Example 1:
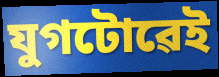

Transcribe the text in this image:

যুগটোৱেই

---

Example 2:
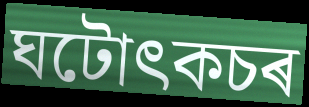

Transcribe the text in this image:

ঘটোৎকচৰ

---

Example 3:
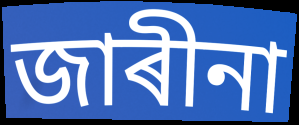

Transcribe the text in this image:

জাৰীনা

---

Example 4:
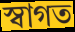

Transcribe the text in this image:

স্বাগত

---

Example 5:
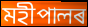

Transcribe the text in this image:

মহীপালৰ